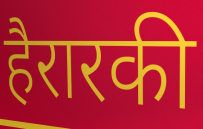
हैरारकी